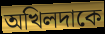
অখিলদাকে